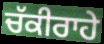
ਚੱਕੀਰਾਹੇ